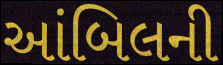
આંબિલની